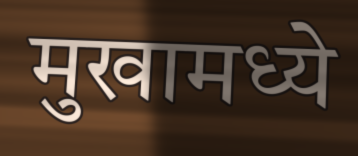
मुखामध्ये